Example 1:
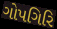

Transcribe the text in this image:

ગોપગિરિ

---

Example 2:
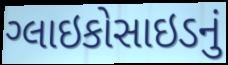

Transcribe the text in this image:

ગ્લાઇકોસાઇડનું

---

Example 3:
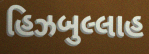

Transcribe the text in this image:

હિઝબુલ્લાહ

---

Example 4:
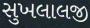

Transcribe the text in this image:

સુખલાલજી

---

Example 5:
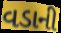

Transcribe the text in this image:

વડાની